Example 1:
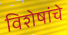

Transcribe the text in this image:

विशेषांचे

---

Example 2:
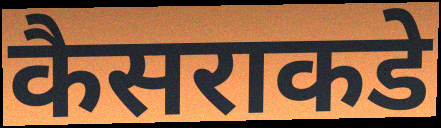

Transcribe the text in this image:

कैसराकडे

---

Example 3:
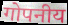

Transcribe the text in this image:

गोपनीय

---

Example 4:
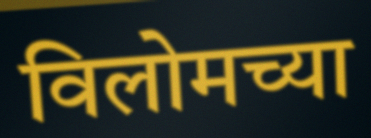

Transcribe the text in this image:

विलोमच्या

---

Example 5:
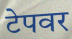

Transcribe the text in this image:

टेपवर